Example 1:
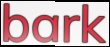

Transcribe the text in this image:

bark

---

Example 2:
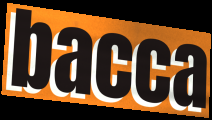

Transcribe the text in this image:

bacca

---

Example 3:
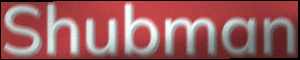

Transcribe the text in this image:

Shubman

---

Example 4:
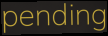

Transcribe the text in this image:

pending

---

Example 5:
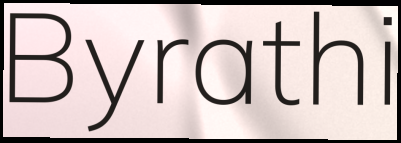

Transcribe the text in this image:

Byrathi